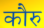
कौरु